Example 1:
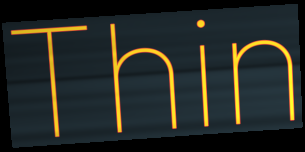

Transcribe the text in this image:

Thin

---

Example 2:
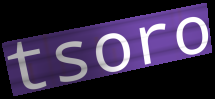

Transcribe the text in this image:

tsoro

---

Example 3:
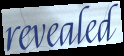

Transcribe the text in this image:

revealed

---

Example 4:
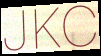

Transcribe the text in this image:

JKC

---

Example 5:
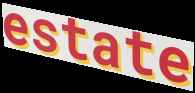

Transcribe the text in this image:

estate